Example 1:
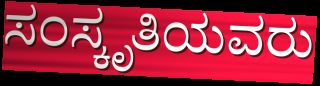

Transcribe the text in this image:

ಸಂಸ್ಕೃತಿಯವರು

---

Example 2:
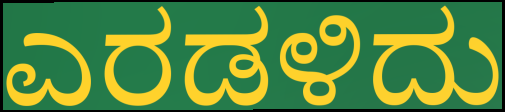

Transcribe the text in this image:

ಎರಡಳಿದು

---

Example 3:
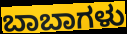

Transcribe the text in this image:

ಬಾಬಾಗಳು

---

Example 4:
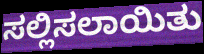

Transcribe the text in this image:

ಸಲ್ಲಿಸಲಾಯಿತು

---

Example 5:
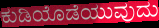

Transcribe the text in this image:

ಕುಡಿಯೊಡೆಯುವುದು